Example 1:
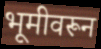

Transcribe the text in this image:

भूमीवरून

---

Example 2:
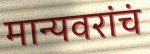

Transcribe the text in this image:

मान्यवरांचं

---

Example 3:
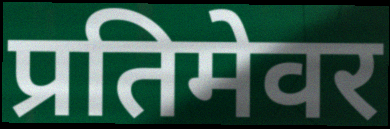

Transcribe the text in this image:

प्रतिमेवर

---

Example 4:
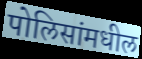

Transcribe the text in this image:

पोलिसांमधील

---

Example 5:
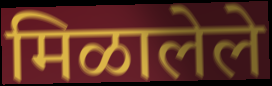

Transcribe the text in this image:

मिळालेले